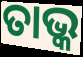
ତାଭ୍କ